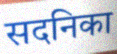
सदनिका